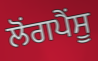
ਲੋਂਗਪੈਂਸੂ